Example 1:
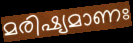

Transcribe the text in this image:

മരിഷ്യമാണഃ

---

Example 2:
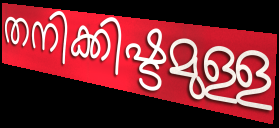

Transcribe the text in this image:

തനിക്കിഷ്ടമുള്ള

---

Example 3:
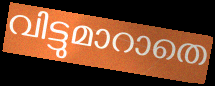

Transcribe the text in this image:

വിട്ടുമാറാതെ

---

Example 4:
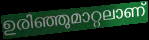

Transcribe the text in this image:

ഉരിഞ്ഞുമാറ്റലാണ്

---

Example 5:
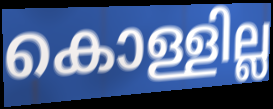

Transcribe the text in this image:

കൊള്ളില്ല